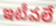
ఇటీవలే